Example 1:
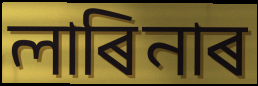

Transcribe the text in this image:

লাৰিনাৰ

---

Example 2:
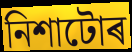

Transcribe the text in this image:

নিশাটোৰ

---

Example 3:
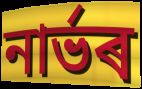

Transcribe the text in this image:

নাৰ্ভৰ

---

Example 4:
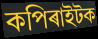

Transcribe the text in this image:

কপিৰাইটক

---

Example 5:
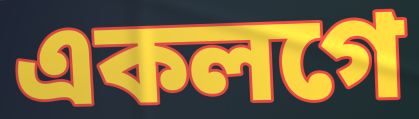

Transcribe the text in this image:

একলগে